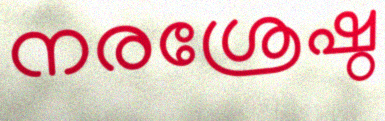
നരശ്രേഷ്ഠ